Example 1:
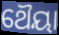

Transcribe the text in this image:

ଥୈୟା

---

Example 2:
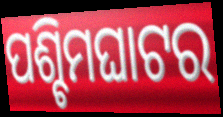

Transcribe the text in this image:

ପଶ୍ଚିମଘାଟର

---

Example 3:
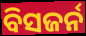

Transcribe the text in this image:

ବିସଜର୍ନ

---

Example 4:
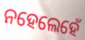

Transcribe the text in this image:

ନହେଲେହେଁ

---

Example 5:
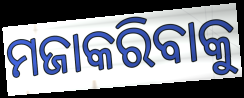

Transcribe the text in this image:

ମଜାକରିବାକୁ